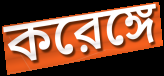
করেঙ্গে